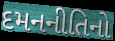
દમનનીતિનો